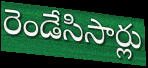
రెండేసిసార్లు